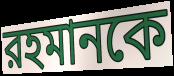
রহমানকে